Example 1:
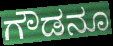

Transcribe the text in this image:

ಗೌಡನೂ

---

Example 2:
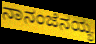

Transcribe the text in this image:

ನಾನಂಜೆನಯ್ಯ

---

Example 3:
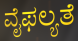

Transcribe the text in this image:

ವೈಫಲ್ಯತೆ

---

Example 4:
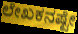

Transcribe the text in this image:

ಲೇಖಕನಷ್ಟೇ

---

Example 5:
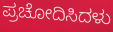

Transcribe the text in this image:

ಪ್ರಚೋದಿಸಿದಳು